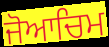
ਜੋਆਚਿਮ